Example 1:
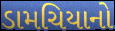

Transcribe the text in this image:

ડામચિયાનો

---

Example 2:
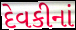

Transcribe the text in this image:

દેવકીનાં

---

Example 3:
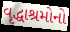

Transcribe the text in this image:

વૃદ્ધાશ્રમોનો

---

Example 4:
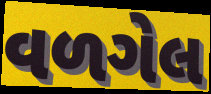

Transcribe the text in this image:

વળગેલ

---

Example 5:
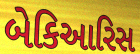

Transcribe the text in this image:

બેકિઆરિસ